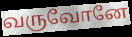
வருவோனே